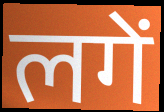
लगें